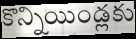
కొన్నియిండ్లకు